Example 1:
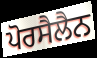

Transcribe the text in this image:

ਪੋਰਸੈਲੈਨ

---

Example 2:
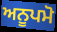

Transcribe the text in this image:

ਅਨੂਪਮੋ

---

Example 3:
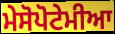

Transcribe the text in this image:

ਮੇਸੋਪੋਟੇਮੀਆ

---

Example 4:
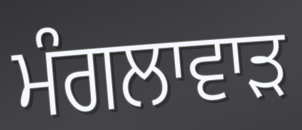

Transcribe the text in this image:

ਮੰਗਲਾਵਾੜ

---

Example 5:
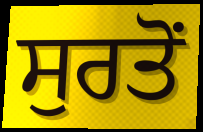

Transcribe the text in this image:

ਸੁਰਤੋਂ